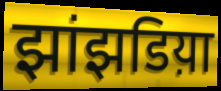
झांझडिय़ा